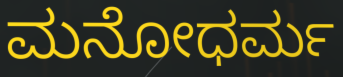
ಮನೋಧರ್ಮ